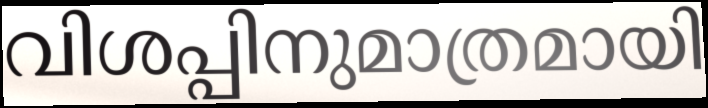
വിശപ്പിനുമാത്രമായി